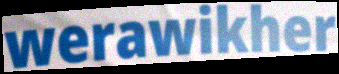
werawikher